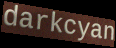
darkcyan